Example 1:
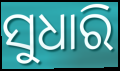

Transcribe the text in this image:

ସୁଧାରି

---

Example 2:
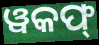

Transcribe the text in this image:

ୱକଫ୍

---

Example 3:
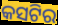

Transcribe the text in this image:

କସଟିର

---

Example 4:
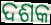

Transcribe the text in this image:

ଦଶକ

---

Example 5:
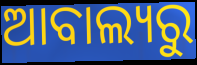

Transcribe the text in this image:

ଆବାଲ୍ୟରୁ